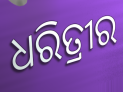
ଧରିତ୍ରୀର